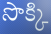
సొక్కి